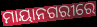
ମାୟାନଗରୀରେ